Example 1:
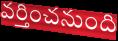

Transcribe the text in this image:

వర్తించనుంది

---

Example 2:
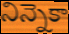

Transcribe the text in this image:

నిన్నెకా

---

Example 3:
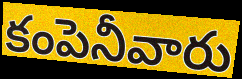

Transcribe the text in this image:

కంపెనీవారు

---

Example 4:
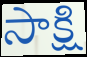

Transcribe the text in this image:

సాక్షి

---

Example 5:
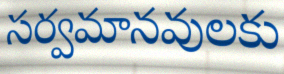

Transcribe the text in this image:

సర్వమానవులకు